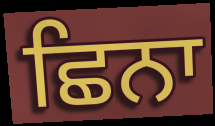
ਛਿਨਾ